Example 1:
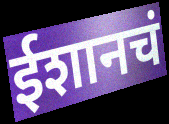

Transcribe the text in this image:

ईशानचं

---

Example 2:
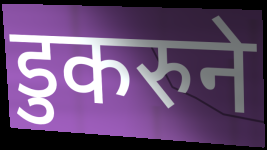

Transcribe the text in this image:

डुकरुने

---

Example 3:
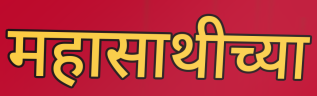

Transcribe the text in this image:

महासाथीच्या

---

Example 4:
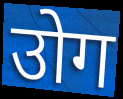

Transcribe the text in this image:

उोग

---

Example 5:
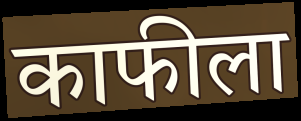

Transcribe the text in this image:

काफीला